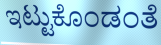
ಇಟ್ಟುಕೊಂಡಂತೆ